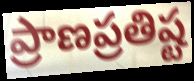
ప్రాణప్రతిష్ట